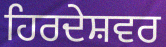
ਹਿਰਦੇਸ਼ਵਰ